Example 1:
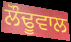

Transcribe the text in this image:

ਲੌਢੂਵਾਲ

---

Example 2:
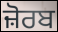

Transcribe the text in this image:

ਜ਼ੋਰਬ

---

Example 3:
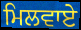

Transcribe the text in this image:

ਮਿਲਵਾਏ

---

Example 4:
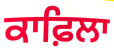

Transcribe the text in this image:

ਕਾਫ਼ਿਲਾ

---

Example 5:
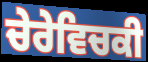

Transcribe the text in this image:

ਚੇਰੇਵਿਚਕੀ